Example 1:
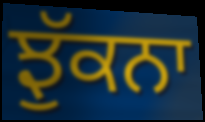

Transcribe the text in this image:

ਝੁੱਕਨਾ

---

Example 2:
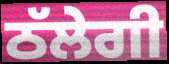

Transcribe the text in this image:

ਠੱਲੇਗੀ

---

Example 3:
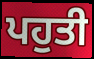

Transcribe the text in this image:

ਪਹੁਤੀ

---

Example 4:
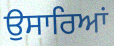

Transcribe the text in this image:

ਉਸਾਰਿਆਂ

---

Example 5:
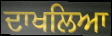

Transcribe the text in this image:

ਦਾਖਲਿਆ